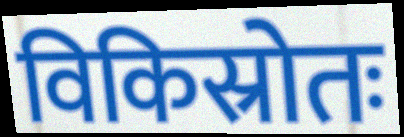
विकिस्रोतः